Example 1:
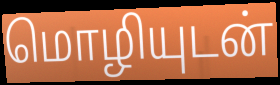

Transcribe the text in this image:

மொழியுடன்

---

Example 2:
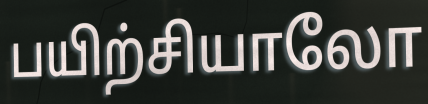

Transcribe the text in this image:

பயிற்சியாலோ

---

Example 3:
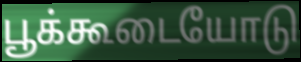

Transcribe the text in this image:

பூக்கூடையோடு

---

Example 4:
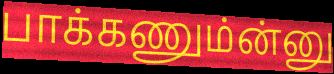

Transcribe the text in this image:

பாக்கணும்ன்னு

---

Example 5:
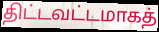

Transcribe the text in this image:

திட்டவட்டமாகத்